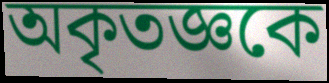
অকৃতজ্ঞকে